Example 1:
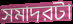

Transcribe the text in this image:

সমাদরটা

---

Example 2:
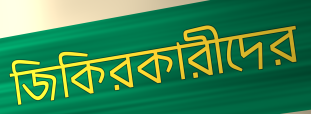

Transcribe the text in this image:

জিকিরকারীদের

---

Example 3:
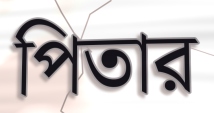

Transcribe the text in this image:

পিতার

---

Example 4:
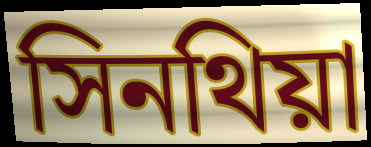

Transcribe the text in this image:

সিনথিয়া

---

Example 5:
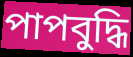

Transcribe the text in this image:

পাপবুদ্ধি